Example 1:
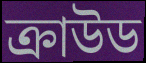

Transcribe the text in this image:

ক্রাউড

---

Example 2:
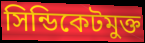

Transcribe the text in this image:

সিন্ডিকেটমুক্ত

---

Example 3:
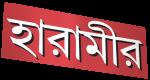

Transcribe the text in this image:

হারামীর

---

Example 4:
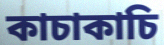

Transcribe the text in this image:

কাচাকাচি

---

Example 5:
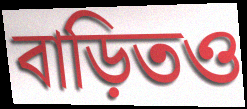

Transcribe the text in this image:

বাড়িতও